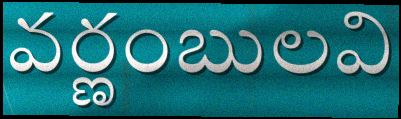
వర్ణంబులవి